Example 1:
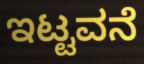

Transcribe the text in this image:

ಇಟ್ಟವನೆ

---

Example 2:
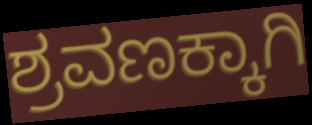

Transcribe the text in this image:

ಶ್ರವಣಕ್ಕಾಗಿ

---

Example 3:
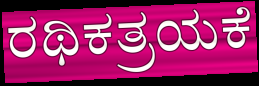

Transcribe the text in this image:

ರಥಿಕತ್ರಯಕೆ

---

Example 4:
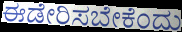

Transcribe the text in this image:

ಈಡೇರಿಸಬೇಕೆಂದು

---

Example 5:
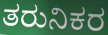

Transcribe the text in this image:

ತರುನಿಕರ